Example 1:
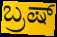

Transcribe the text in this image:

ಬ್ರಷ್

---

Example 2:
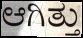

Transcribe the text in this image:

ಆಗಿತ್ತು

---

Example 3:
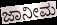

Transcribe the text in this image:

ಜಾನೀಮ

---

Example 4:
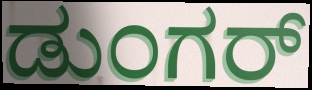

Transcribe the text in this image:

ಡುಂಗರ್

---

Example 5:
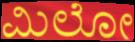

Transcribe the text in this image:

ಮಿಲೋ